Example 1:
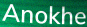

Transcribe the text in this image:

Anokhe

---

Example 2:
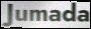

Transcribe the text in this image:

Jumada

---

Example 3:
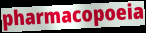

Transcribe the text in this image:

pharmacopoeia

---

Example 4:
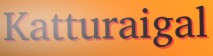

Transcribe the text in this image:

Katturaigal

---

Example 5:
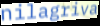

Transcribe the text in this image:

nilagriva